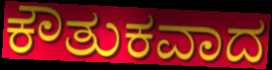
ಕೌತುಕವಾದ